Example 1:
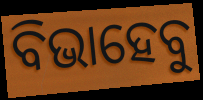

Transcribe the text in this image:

ବିଭାହେବୁ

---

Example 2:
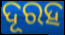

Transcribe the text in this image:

ଦୂରହ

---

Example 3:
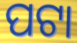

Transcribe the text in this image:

ପଟା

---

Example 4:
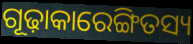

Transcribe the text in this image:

ଗୂଢ଼ାକାରେଙ୍ଗିତସ୍ୟ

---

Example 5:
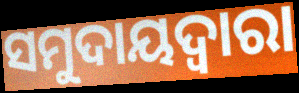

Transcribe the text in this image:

ସମୁଦାୟଦ୍ୱାରା